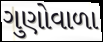
ગુણોવાળા